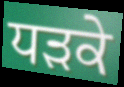
ਧੜਕੇ